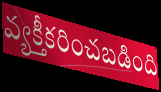
వ్యక్తీకరించబడింది